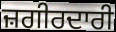
ਜ਼ਗੀਰਦਾਰੀ